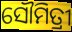
ସୌମିତ୍ରୀ